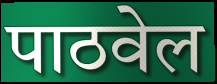
पाठवेल